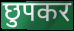
छुपकर